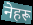
नेहरू